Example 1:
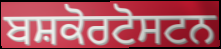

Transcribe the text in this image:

ਬਸ਼ਕੋਰਟੋਸਟਨ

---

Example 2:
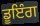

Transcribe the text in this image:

ਡੂਇੰਗ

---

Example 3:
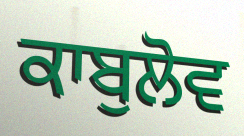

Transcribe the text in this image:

ਕਾਬੁਲੋਵ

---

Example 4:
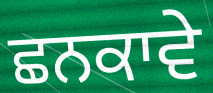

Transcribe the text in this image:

ਛਨਕਾਵੇ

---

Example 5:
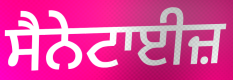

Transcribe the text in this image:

ਸੈਨੇਟਾਈਜ਼